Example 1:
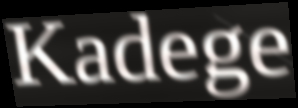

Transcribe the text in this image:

Kadege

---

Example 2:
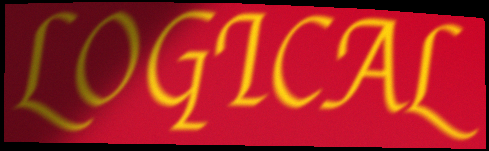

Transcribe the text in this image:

LOGICAL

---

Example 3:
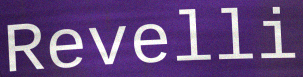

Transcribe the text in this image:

Revelli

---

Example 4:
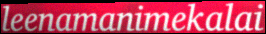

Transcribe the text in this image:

leenamanimekalai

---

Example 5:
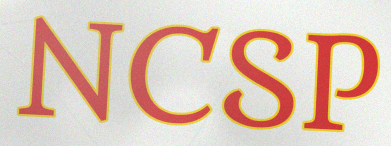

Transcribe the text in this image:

NCSP